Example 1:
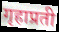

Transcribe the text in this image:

गृहाप्रती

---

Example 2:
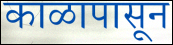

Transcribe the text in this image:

काळापासून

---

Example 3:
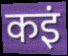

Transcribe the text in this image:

कइं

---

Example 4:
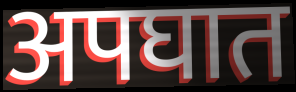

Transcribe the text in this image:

अपघात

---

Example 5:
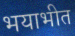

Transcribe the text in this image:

भयाभीत